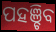
ପହଞ୍ଚିବ